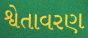
શ્વેતાવરણ